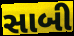
સાબી